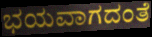
ಭಯವಾಗದಂತೆ